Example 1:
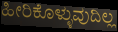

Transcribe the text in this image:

ಹೀರಿಕೊಳ್ಳುವುದಿಲ್ಲ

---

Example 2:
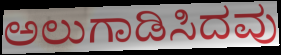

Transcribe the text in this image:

ಅಲುಗಾಡಿಸಿದವು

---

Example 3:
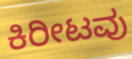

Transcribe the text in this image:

ಕಿರೀಟವು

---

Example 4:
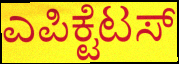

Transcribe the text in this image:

ಎಪಿಕ್ಟೆಟಸ್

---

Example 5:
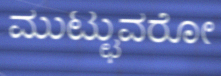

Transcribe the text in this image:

ಮುಟ್ಟುವರೋ